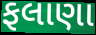
ફલાણા